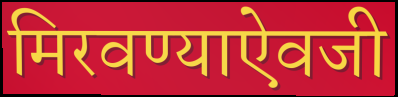
मिरवण्याऐवजी